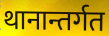
थानान्तर्गत